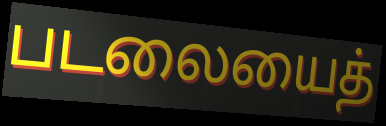
படலையைத்